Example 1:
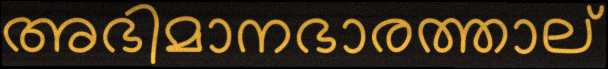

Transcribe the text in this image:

അഭിമാനഭാരത്താല്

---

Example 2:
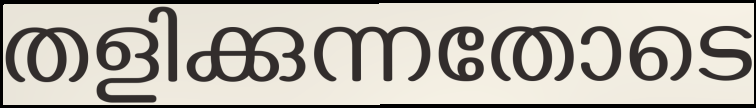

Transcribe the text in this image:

തളിക്കുന്നതോടെ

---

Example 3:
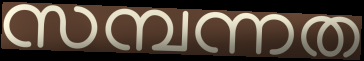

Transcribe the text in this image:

സമ്പന്നത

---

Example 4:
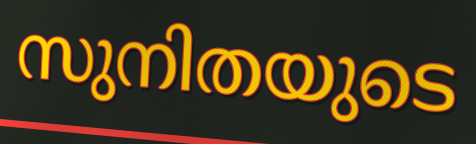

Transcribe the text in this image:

സുനിതയുടെ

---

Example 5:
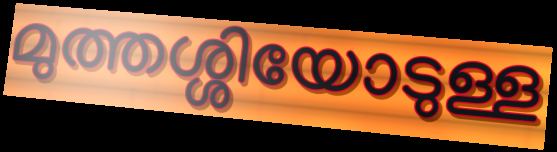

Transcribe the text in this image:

മുത്തശ്ശിയോടുള്ള